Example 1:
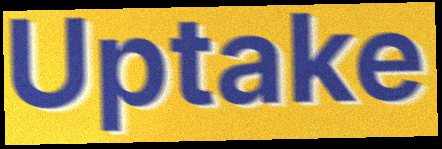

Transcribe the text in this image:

Uptake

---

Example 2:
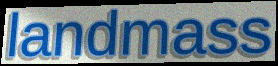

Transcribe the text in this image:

landmass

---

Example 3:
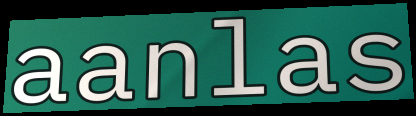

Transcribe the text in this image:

aanlas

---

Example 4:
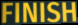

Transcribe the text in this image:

FINISH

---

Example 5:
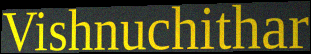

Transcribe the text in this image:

Vishnuchithar